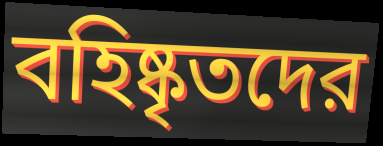
বহিষ্কৃতদের